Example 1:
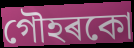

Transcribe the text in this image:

গৌহৰকো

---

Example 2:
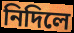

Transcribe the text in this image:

নিদিলে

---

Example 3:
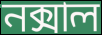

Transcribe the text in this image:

নক্সাল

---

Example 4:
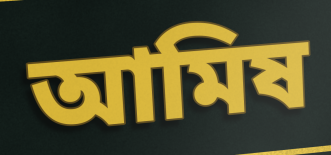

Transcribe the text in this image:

আমিষ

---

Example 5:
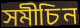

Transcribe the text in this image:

সমীচিন